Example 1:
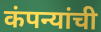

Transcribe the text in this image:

कंपन्यांची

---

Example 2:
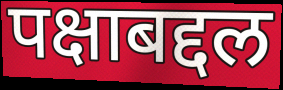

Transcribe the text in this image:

पक्षाबद्दल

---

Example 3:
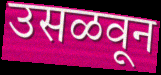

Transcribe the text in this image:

उसळवून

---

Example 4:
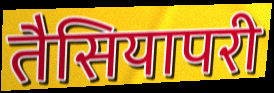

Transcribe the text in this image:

तैसियापरी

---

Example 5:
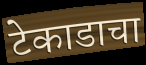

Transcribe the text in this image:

टेकाडाचा